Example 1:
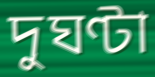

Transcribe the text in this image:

দুঘণ্টা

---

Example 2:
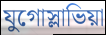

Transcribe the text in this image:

যুগোস্লাভিয়া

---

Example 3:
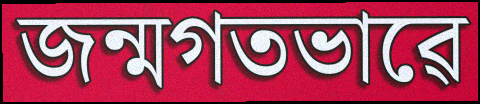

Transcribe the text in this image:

জন্মগতভাৱে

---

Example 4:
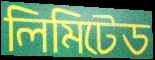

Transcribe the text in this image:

লিমিটেড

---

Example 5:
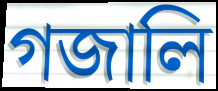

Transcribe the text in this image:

গজালি